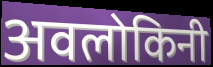
अवलोकिनी